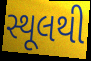
સ્થૂલથી